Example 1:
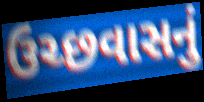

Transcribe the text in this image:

ઉચ્છવાસનું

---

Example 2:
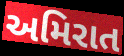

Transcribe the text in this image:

અમિરાત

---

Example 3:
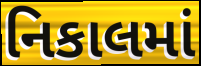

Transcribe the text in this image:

નિકાલમાં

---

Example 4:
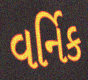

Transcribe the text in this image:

વર્નિક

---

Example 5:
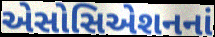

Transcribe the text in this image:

એસોસિએશનનાં